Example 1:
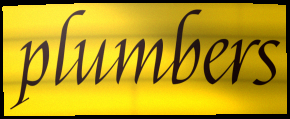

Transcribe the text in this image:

plumbers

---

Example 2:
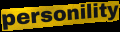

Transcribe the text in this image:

personility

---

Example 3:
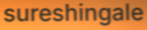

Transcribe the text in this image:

sureshingale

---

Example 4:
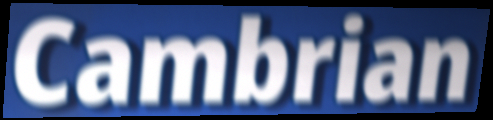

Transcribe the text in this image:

Cambrian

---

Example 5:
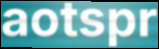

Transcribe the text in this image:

aotspr